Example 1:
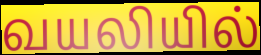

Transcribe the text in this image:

வயலியில்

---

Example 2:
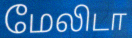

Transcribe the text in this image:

மேலிடா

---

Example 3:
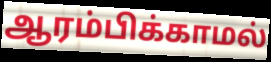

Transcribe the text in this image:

ஆரம்பிக்காமல்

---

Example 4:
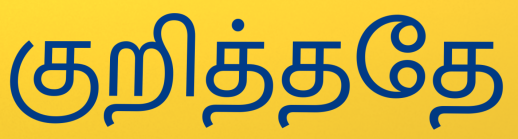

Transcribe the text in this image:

குறித்ததே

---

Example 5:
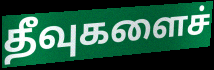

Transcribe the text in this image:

தீவுகளைச்